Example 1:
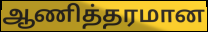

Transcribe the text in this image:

ஆணித்தரமான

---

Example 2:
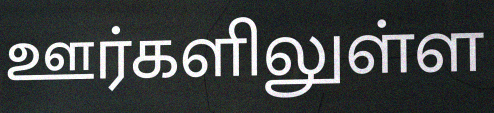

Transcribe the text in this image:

ஊர்களிலுள்ள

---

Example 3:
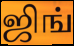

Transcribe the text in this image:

ஜிங்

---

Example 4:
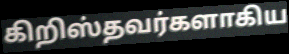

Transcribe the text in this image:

கிறிஸ்தவர்களாகிய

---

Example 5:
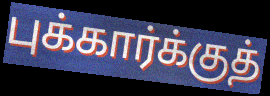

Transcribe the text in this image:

புக்கார்க்குத்